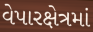
વેપારક્ષેત્રમાં